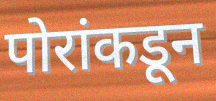
पोरांकडून